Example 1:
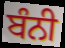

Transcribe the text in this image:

ਬੰਨੀ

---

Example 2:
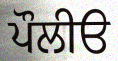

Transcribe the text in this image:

ਪੌਲੀੳ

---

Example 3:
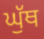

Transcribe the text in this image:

ਘੁੱਥ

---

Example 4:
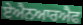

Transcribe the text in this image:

ਏਐਨਆਰਐਫ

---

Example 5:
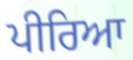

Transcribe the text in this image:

ਪੀਰਿਆ